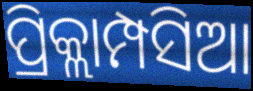
ପ୍ରିକ୍ଲାମ୍ପସିଆ